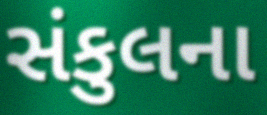
સંકુલના